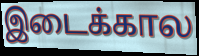
இடைக்கால